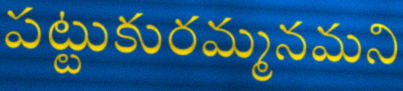
పట్టుకురమ్మనమని